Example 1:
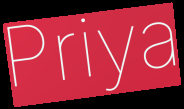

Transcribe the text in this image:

Priya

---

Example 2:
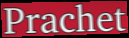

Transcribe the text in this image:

Prachet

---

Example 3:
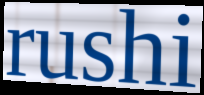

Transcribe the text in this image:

rushi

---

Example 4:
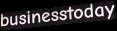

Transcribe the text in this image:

businesstoday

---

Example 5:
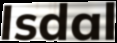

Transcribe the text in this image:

Isdal